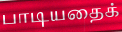
பாடியதைக்